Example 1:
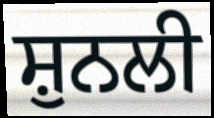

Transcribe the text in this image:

ਸ਼ੁਨਲੀ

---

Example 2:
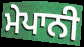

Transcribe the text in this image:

ਮੇਪਾਨੀ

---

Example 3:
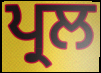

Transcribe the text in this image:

ਪ੍ਰਲ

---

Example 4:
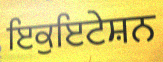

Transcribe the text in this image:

ਇਕੁਇਟੇਸ਼ਨ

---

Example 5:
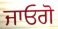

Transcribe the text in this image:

ਜਾਓਗੋ